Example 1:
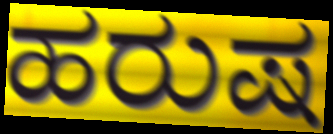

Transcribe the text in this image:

ಹರುಷ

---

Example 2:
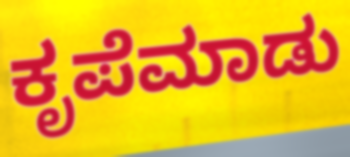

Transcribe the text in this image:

ಕೃಪೆಮಾಡು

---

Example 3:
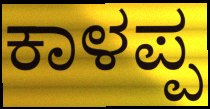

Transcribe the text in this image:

ಕಾಳಪ್ಪ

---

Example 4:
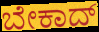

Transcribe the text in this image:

ಬೇಕಾದ್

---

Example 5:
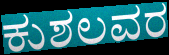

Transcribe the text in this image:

ಕುಶಲವರ